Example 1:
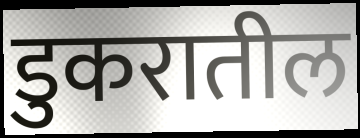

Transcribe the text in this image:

डुकरातील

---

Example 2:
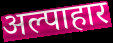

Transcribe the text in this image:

अल्पाहार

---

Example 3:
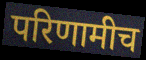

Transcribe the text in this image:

परिणामीच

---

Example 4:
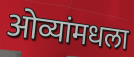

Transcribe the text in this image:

ओव्यांमधला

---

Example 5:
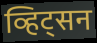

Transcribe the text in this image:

व्हिट्सन